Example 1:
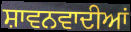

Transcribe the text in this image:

ਸ਼ਾਵਨਵਾਦੀਆਂ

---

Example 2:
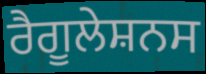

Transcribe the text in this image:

ਰੈਗੂਲੇਸ਼ਨਸ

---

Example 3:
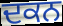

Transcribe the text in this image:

ਦਕਨ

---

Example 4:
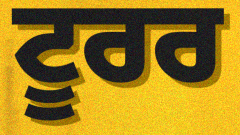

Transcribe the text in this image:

ਟੂਰਰ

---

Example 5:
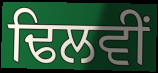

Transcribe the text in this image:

ਢਿਲਵੀਂ